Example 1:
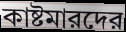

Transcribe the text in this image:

কাষ্টমারদের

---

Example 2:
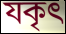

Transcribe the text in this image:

যকৃৎ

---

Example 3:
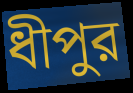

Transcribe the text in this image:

ধীপুর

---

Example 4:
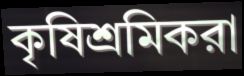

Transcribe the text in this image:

কৃষিশ্রমিকরা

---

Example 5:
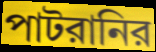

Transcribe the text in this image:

পাটরানির